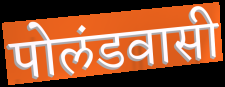
पोलंडवासी